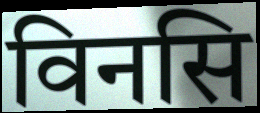
विनसि